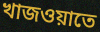
খাজওয়াতে